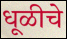
धूळीचे